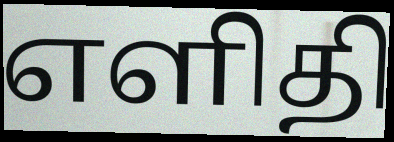
எளிதி